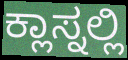
ಕ್ಲಾಸ್ನಲ್ಲಿ